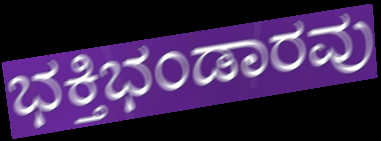
ಭಕ್ತಿಭಂಡಾರವು